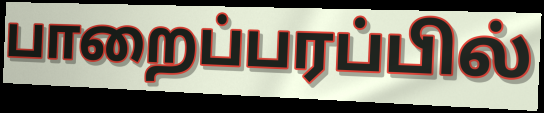
பாறைப்பரப்பில்